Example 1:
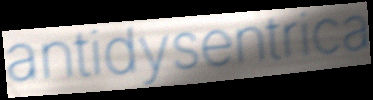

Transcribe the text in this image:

antidysentrica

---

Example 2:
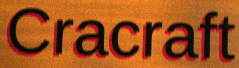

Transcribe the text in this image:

Cracraft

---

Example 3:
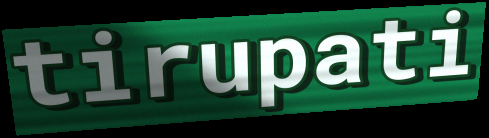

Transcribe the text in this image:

tirupati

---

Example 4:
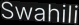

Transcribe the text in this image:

Swahili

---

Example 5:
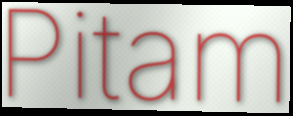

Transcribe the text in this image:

Pitam